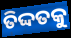
ତିଦ୍ଦତକୁ